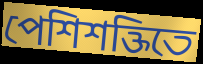
পেশিশক্তিতে